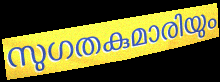
സുഗതകുമാരിയും